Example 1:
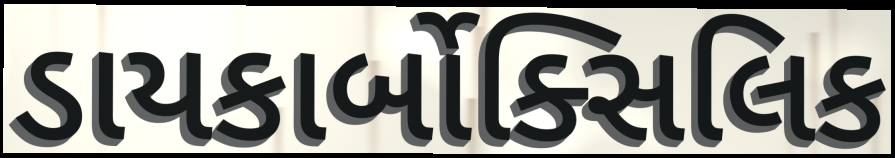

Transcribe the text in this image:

ડાયકાર્બોક્સિલિક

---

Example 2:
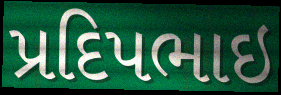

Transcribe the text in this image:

પ્રદિપભાઇ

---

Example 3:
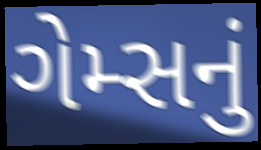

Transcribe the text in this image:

ગેમ્સનું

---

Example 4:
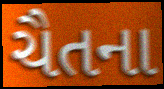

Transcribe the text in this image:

ચૈતના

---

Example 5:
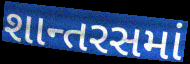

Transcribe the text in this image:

શાન્તરસમાં